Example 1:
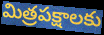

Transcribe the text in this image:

మిత్రపక్షాలకు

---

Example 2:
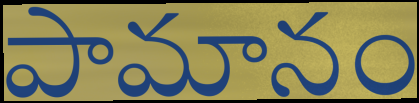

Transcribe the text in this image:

పామానం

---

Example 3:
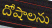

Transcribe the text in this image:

దోషాలను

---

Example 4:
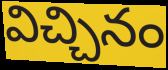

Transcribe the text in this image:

విచ్చినం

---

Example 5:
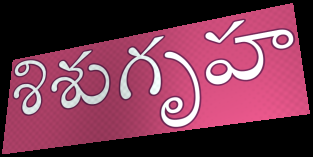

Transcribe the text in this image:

శిశుగృహ